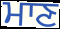
ਮਾਣ